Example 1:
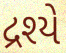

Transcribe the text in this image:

દ્રશ્યે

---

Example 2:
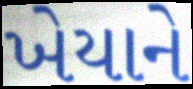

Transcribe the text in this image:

ખેયાને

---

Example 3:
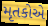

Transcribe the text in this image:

મૃતકોએ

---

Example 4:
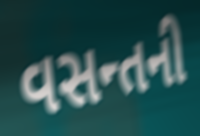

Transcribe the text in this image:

વસન્તની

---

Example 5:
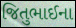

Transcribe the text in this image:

જિતુભાઈના